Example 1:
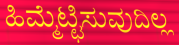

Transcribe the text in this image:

ಹಿಮ್ಮೆಟ್ಟಿಸುವುದಿಲ್ಲ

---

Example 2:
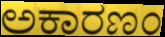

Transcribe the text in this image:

ಅಕಾರಣಂ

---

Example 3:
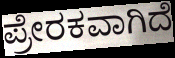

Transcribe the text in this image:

ಪ್ರೇರಕವಾಗಿದೆ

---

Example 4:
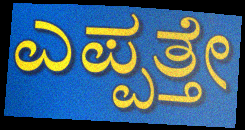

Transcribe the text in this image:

ಎಪ್ಪತ್ತೇ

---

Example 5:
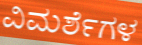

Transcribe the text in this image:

ವಿಮರ್ಶೆಗಳ